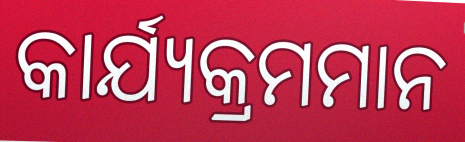
କାର୍ଯ୍ୟକ୍ରମମାନ